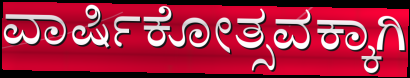
ವಾರ್ಷಿಕೋತ್ಸವಕ್ಕಾಗಿ